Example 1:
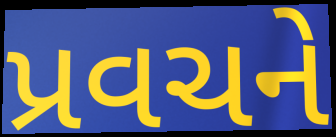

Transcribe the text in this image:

પ્રવચને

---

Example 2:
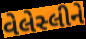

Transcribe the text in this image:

વેલેસ્લીને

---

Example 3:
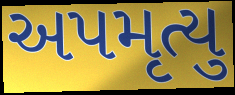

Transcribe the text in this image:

અપમૃત્યુ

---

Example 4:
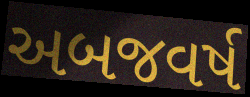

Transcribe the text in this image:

અબજવર્ષ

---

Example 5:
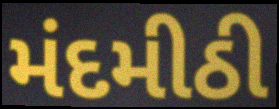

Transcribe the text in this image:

મંદમીઠી